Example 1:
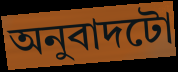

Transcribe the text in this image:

অনুবাদটো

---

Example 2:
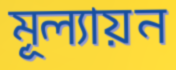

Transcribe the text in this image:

মূল্যায়ন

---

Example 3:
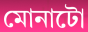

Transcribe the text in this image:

মোনাটো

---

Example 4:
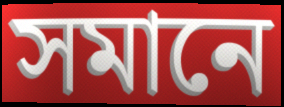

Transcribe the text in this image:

সমানে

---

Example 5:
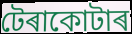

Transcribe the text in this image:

টেৰাকোটাৰ